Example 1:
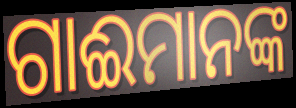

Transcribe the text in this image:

ଗାଈମାନଙ୍କ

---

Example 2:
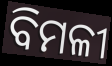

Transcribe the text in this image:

ବିମଳୀ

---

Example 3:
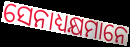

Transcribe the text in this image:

ସେନାଧ୍ୟକ୍ଷମାନେ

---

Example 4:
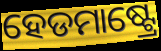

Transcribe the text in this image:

ହେଡମାଷ୍ଟ୍ରେ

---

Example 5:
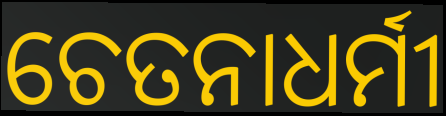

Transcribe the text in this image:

ଚେତନାଧର୍ମୀ